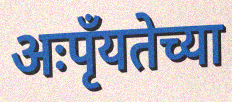
अःपृँयतेच्या